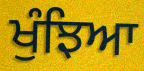
ਖੁੰਝਿਆ